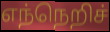
எந்நெறிச்